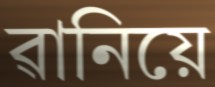
ৱানিয়ে